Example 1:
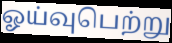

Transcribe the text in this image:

ஓய்வுபெற்று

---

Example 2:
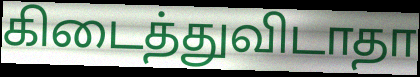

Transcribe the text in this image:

கிடைத்துவிடாதா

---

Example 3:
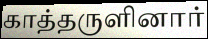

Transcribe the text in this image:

காத்தருளினார்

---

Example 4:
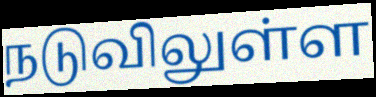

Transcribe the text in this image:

நடுவிலுள்ள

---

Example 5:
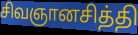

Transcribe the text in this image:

சிவஞானசித்தி